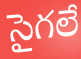
సైగలే